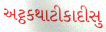
અટ્ઠકથાટીકાદીસુ